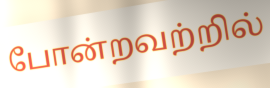
போன்றவற்றில்